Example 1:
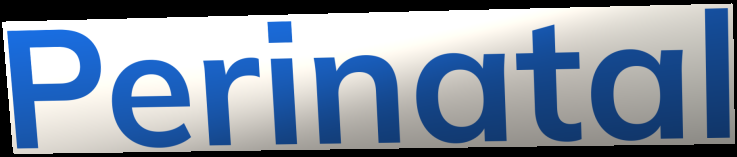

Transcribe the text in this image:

Perinatal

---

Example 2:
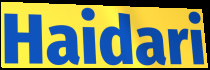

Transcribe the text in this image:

Haidari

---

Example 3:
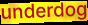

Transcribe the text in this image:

underdog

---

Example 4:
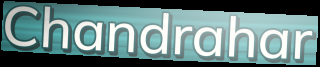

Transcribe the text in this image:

Chandrahar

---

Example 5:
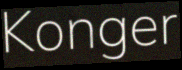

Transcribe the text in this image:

Konger